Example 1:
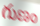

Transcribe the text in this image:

గుణం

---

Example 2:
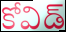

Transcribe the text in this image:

కోవిడ్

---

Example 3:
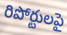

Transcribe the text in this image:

రిపోర్టులపై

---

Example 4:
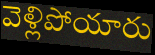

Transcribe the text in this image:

వెళ్లిపోయారు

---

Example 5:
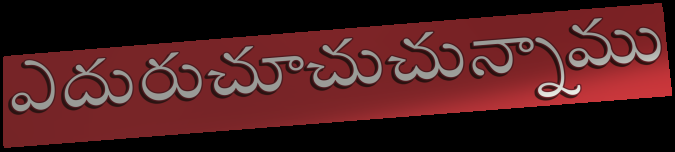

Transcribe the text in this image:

ఎదురుచూచుచున్నాము